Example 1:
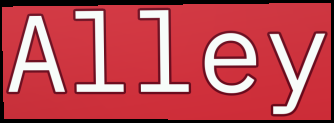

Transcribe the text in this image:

Alley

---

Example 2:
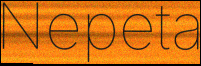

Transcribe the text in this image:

Nepeta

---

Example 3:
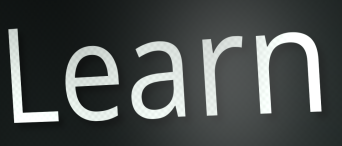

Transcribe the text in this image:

Learn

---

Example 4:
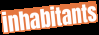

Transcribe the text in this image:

inhabitants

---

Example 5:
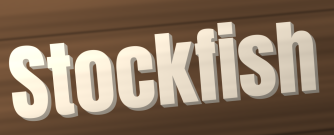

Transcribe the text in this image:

Stockfish